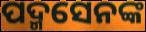
ପଦ୍ମସେନଙ୍କ